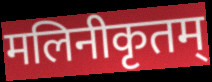
मलिनीकृतम्